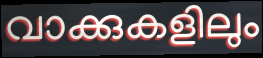
വാക്കുകളിലും